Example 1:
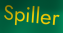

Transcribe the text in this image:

Spiller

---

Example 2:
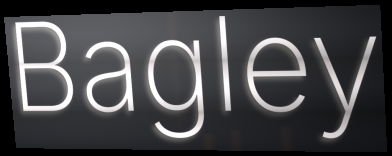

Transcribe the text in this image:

Bagley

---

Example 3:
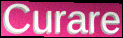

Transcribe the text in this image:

Curare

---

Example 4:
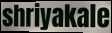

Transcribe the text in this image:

shriyakale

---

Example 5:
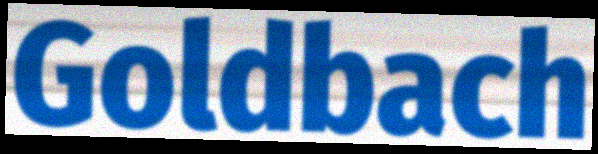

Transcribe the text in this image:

Goldbach